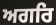
ਅਗਰਿ